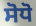
ਸੋਧੋ